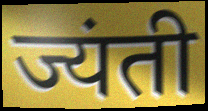
ज्यंती